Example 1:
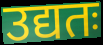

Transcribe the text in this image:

उद्यतः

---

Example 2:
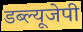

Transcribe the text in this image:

डब्ल्यूजेपी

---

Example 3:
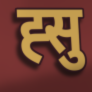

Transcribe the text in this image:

ह्सु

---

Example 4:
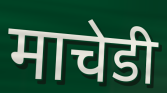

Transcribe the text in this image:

माचेडी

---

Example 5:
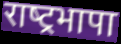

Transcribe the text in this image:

राष्ट्रभापा